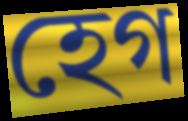
হেগ